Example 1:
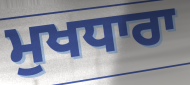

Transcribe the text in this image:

ਮੁਖਧਾਰਾ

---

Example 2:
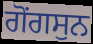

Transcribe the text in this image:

ਗੋਂਗਸੁਨ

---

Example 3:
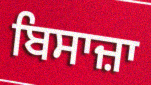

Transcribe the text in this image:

ਬਿਸਾਜ਼ਾ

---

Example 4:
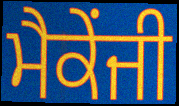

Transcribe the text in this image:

ਮੈਕੇਂਜੀ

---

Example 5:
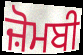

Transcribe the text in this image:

ਜ਼ੋਮਬੀ